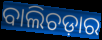
ବାଲିଚଡ଼ାର